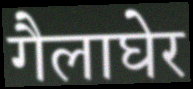
गैलाघेर